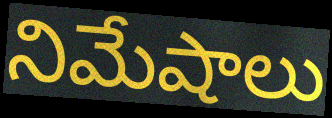
నిమేషాలు